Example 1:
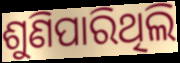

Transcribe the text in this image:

ଶୁଣିପାରିଥିଲି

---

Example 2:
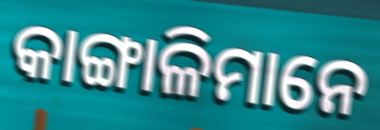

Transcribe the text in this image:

କାଙ୍ଗାଳିମାନେ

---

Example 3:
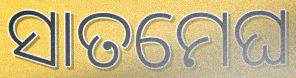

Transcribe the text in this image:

ସାତମେଘ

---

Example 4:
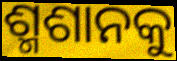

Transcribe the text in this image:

ଶ୍ମଶାନକୁ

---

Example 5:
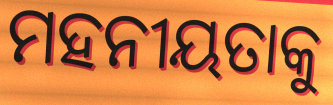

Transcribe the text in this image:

ମହନୀୟତାକୁ